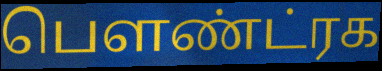
பௌண்ட்ரக